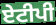
ਏਟੀਪੀ